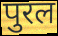
पुरल